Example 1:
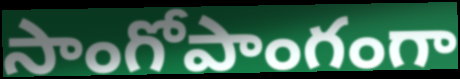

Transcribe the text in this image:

సాంగోపాంగంగా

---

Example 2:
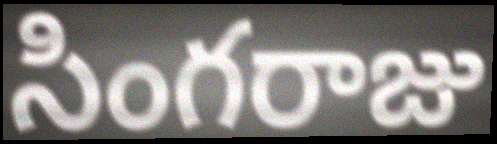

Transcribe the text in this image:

సింగరాజు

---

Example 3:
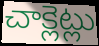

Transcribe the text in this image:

చాక్లెట్లు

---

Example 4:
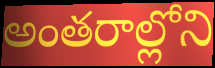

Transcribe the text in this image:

అంతరాల్లోని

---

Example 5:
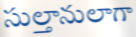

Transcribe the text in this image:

సుల్తానులాగా